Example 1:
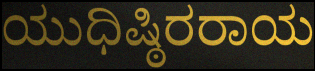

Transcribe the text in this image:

ಯುಧಿಷ್ಠಿರರಾಯ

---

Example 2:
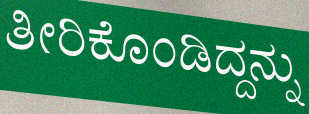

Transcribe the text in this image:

ತೀರಿಕೊಂಡಿದ್ದನ್ನು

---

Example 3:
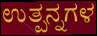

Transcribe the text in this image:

ಉತ್ಪನ್ನಗಳ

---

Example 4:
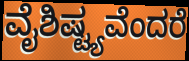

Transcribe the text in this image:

ವೈಶಿಷ್ಟ್ಯವೆಂದರೆ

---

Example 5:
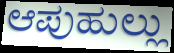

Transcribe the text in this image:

ಆಪುಹುಲ್ಲು